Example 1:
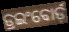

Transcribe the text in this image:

ଡ୍ରଇଂବୋର୍ଡ଼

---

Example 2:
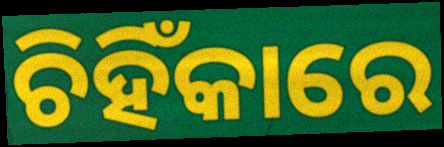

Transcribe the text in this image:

ଚିହିଁକାରେ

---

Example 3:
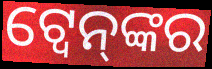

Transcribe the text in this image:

ଟ୍ୱେନ୍‌ଙ୍କର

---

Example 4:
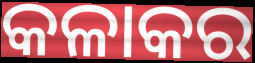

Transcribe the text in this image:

କଳାକର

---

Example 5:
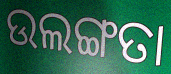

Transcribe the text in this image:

ଉଲଙ୍ଗତା